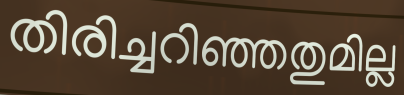
തിരിച്ചറിഞ്ഞതുമില്ല